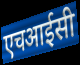
एचआईसी